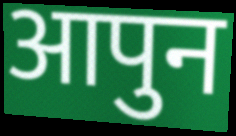
आपुन